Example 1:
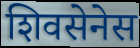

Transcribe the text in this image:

शिवसेनेस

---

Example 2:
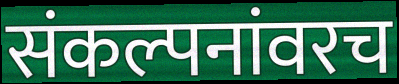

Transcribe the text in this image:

संकल्पनांवरच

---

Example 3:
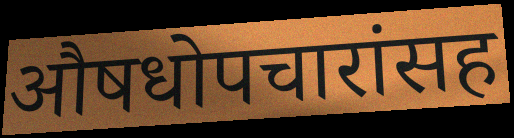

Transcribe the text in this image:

औषधोपचारांसह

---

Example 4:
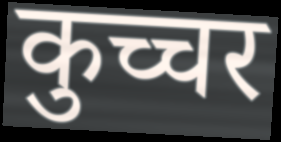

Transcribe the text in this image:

कुच्चर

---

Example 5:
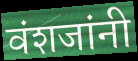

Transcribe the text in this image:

वंशजांनी